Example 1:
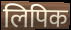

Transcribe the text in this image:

लिपिक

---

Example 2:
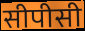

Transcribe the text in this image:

सीपीसी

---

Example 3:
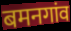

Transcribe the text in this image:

बमनगांव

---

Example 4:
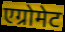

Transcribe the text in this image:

एग्रोमेट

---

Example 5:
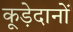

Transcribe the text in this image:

कूड़ेदानों